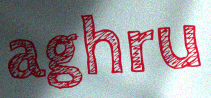
aghru